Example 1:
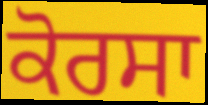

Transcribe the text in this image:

ਕੋਰਸਾ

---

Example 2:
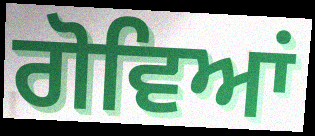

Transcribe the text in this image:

ਗੋਵਿਆਂ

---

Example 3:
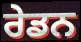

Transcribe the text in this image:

ਰੇਡਨ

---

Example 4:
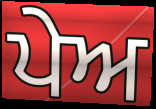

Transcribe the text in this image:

ਪੇਅ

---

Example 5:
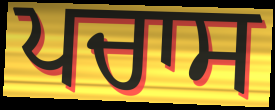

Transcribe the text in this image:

ਪਚਾਸ